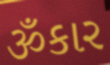
ૐકાર